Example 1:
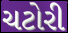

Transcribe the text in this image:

ચટોરી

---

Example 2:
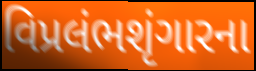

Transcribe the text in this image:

વિપ્રલંભશૃંગારના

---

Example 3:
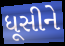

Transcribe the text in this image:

ધૂસીને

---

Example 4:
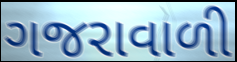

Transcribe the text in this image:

ગજરાવાળી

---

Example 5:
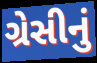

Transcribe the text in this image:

ગ્રેસીનું